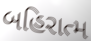
બહિરાત્મ